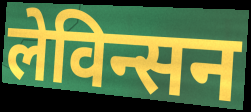
लेविन्सन